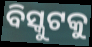
ବିସ୍କୁଟକୁ